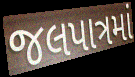
જલપાત્રમાં